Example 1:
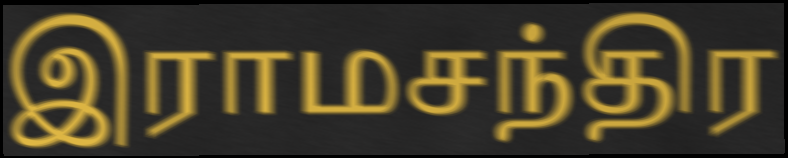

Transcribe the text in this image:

இராமசந்திர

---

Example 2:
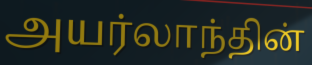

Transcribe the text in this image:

அயர்லாந்தின்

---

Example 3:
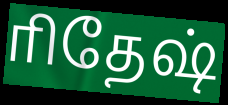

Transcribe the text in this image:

ரிதேஷ்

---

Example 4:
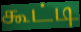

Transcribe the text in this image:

கூட்டி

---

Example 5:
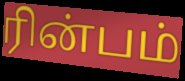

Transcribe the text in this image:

ரின்பம்